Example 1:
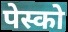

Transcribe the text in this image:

पेस्को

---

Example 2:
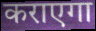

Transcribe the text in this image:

कराएगा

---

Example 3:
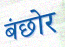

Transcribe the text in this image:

बंछोर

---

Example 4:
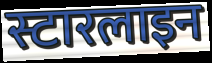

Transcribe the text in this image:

स्टारलाइन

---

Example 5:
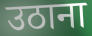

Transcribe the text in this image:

उठाना